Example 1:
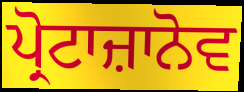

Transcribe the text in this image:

ਪ੍ਰੋਟਾਜ਼ਾਨੋਵ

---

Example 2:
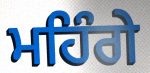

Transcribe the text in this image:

ਮਹਿੰਗੇ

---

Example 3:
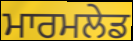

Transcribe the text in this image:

ਮਾਰਮਲੇਡ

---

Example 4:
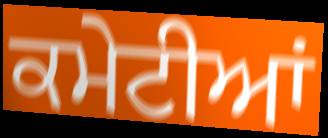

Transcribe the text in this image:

ਕਮੇਟੀਆਂ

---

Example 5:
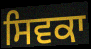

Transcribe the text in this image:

ਸਿਵਕਾ